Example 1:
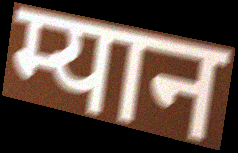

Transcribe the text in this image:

म्यान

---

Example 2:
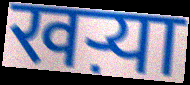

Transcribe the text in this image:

खऱ्‍या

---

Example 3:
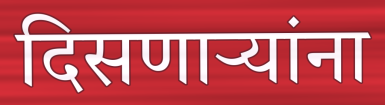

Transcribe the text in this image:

दिसणाऱ्यांना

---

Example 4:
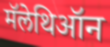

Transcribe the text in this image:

मॅलेथिऑन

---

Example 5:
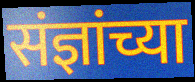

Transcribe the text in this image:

संज्ञांच्या